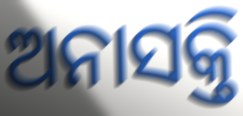
ଅନାସକ୍ତି